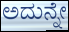
ಅದುನ್ನೇ